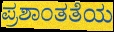
ಪ್ರಶಾಂತತೆಯ